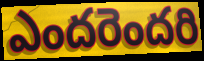
ఎందరెందరి